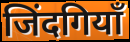
जिंदगियाँ